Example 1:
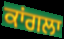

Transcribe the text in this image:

ਕਾਂਗਲਾ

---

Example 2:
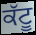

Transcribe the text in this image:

ਕੱਟੂ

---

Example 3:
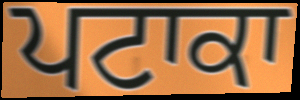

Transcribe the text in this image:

ਪਟਾਕਾ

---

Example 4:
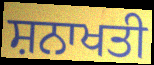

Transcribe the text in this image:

ਸ਼ਨਾਖਤੀ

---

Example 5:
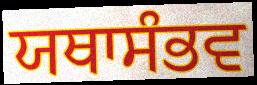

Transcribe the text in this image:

ਯਥਾਸੰਭਵ